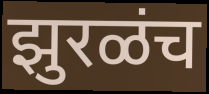
झुरळंच